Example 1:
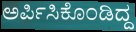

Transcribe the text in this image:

ಅರ್ಪಿಸಿಕೊಂಡಿದ್ದ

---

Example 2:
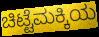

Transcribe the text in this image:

ಚಿಟ್ಟೆಮಕ್ಕಿಯ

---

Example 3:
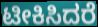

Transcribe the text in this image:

ಟೀಕಿಸಿದರೆ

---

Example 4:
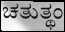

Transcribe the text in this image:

ಚತುತ್ಥಂ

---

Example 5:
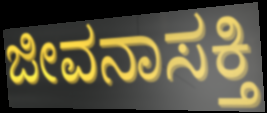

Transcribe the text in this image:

ಜೀವನಾಸಕ್ತಿ